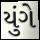
યુંગે